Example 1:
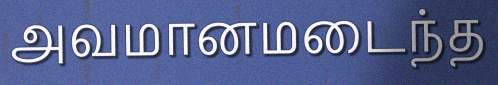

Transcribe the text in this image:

அவமானமடைந்த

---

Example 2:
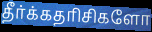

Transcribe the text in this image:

தீர்க்கதரிசிகளோ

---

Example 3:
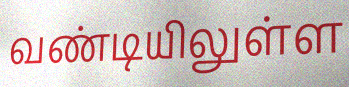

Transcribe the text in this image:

வண்டியிலுள்ள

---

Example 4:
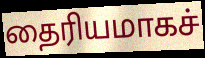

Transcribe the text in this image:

தைரியமாகச்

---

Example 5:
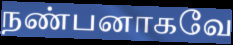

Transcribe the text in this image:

நண்பனாகவே